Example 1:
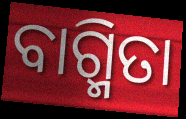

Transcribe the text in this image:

ବାଗ୍ମିତା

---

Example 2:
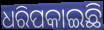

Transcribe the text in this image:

ଧରିପକାଇଛି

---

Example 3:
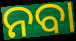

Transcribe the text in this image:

ନବା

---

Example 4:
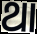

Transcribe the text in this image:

ଥା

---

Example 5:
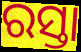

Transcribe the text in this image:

ରସ୍ତା